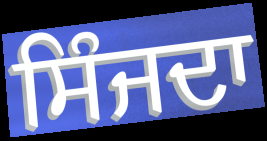
ਸਿੰਜਦਾ